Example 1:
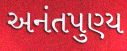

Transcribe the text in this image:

અનંતપુણ્ય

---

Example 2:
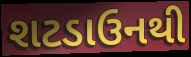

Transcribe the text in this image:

શટડાઉનથી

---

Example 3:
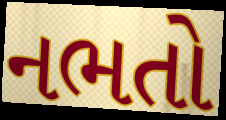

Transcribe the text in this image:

નભતો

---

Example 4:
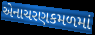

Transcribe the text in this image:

એનાચરણકમળમાં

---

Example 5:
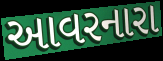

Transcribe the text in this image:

આવરનારા